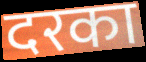
दरका